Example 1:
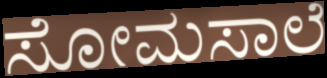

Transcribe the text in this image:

ಸೋಮಸಾಲೆ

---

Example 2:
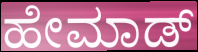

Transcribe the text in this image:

ಹೇಮಾಡ್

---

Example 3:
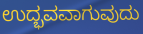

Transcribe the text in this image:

ಉದ್ಭವವಾಗುವುದು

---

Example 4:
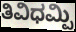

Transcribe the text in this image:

ತಿವಿಧಮ್ಪಿ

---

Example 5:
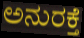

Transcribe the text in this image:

ಅನುರಕ್ತೆ